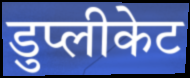
डुप्‍लीकेट